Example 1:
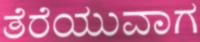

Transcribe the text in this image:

ತೆರೆಯುವಾಗ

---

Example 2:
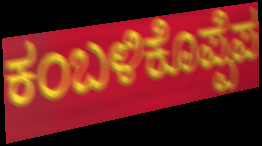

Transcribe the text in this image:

ಕಂಬಳಿಕೊಪ್ಪೆಪ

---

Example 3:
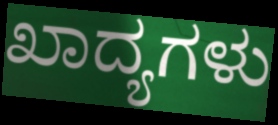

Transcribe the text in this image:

ಖಾದ್ಯಗಳು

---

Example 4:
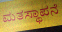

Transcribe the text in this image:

ಮತಸ್ಥಾಪನೆ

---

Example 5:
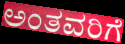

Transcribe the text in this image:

ಅಂತವರಿಗೆ